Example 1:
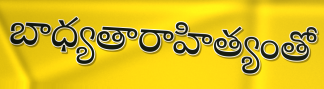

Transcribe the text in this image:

బాధ్యతారాహిత్యంతో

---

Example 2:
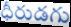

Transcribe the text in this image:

ధీరుడగు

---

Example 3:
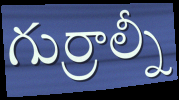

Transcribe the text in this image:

గుర్రాల్నీ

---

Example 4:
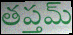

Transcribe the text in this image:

తప్తమ్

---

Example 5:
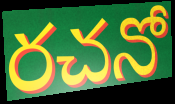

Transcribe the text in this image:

రచనో